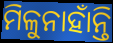
ମିଳୁନାହାଁନ୍ତି